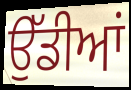
ਉੱਡੀਆਂ